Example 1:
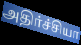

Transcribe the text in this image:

அதிர்ச்சியா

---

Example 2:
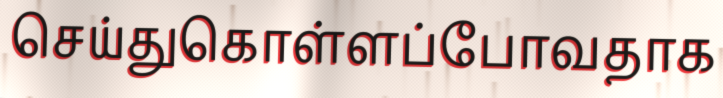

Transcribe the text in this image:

செய்துகொள்ளப்போவதாக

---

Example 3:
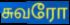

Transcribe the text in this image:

சுவரோ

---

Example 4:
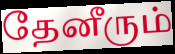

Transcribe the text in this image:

தேனீரும்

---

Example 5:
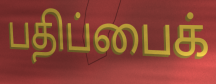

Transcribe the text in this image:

பதிப்பைக்